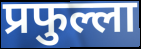
प्रफुल्ला